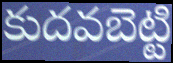
కుదవబెట్టి